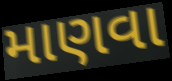
માણવા